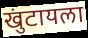
खुंटायला